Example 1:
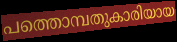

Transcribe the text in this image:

പത്തൊമ്പതുകാരിയായ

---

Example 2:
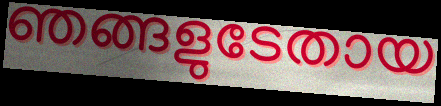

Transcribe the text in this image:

ഞങ്ങളുടേതായ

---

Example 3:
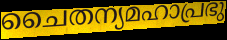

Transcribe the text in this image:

ചൈതന്യമഹാപ്രഭു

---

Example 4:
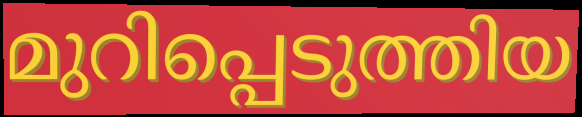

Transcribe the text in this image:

മുറിപ്പെടുത്തിയ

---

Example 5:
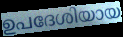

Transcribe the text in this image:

ഉപദേശിയായ